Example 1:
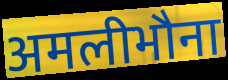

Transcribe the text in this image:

अमलीभौना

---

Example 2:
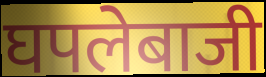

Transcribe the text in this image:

घपलेबाजी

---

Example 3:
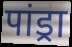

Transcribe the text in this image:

पांड्रा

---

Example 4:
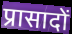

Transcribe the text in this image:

प्रासादों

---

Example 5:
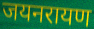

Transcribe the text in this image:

जयनरायण